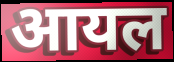
आयल